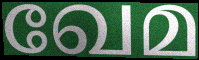
ഖേമ